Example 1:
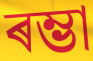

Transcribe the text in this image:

ৰম্ভা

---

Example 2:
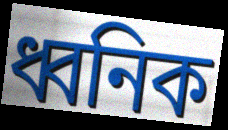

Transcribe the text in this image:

ধ্বনিক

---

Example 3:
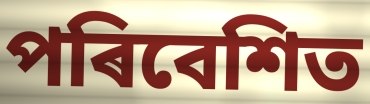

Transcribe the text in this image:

পৰিবেশিত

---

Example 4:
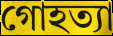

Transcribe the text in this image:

গোহত্যা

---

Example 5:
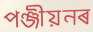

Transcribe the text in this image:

পঞ্জীয়নৰ